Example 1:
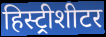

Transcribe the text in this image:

हिस्ट्रीशीटर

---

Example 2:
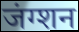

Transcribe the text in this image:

जंग्शन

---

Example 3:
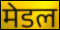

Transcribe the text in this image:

मेडल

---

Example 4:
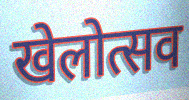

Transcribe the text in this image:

खेलोत्सव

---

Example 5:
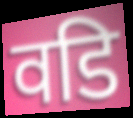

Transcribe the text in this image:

वडि